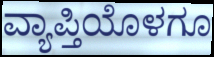
ವ್ಯಾಪ್ತಿಯೊಳಗೂ